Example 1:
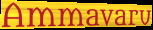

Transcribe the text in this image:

Ammavaru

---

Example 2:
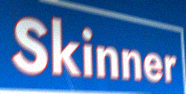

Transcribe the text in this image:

Skinner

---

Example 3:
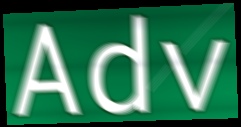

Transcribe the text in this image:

Adv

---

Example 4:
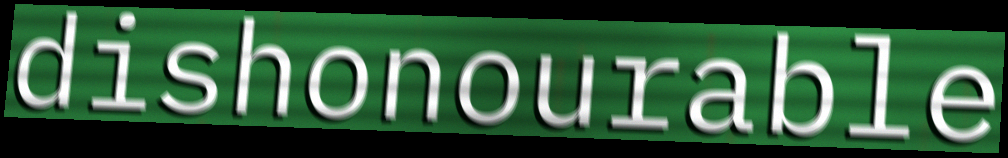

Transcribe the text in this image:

dishonourable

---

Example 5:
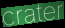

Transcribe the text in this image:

crater